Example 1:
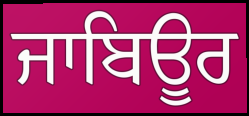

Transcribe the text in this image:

ਜਾਬਿਊਰ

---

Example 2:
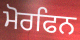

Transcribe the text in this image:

ਮੋਰਫਿਨ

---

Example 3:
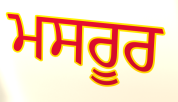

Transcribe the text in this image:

ਮਸਰੂਰ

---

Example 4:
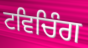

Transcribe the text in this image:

ਟਵਿਚਿੰਗ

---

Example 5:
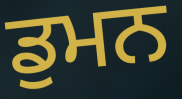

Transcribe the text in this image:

ਡੁਮਨ